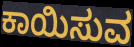
ಕಾಯಿಸುವ